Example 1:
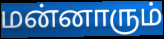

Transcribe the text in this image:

மன்னாரும்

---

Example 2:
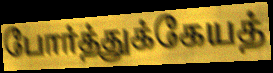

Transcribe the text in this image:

போர்த்துக்கேயத்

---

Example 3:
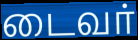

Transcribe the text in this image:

டைவர்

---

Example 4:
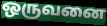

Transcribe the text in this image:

ஒருவனை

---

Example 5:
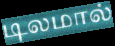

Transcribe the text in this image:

டிலமால்